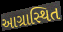
આગ્રાસ્થિત